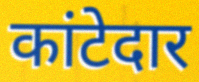
कांटेदार